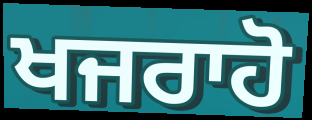
ਖਜਰਾਹੋ